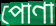
পোণা